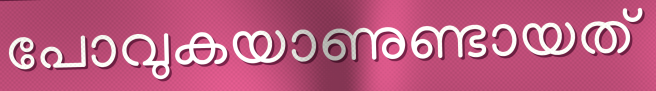
പോവുകയാണുണ്ടായത്